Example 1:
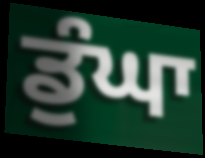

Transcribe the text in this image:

ਡੁੰਘਾ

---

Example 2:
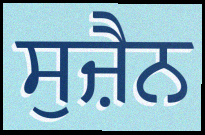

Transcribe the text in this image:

ਸੁਜ਼ੈਨ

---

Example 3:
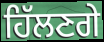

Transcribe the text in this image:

ਹਿੱਲਣਗੇ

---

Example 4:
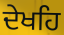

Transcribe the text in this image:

ਦੇਖਹਿ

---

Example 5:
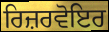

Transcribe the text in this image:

ਰਿਜ਼ਰਵੋਇਰ